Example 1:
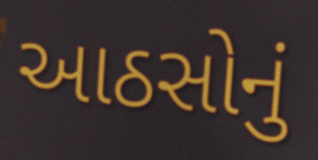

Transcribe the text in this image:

આઠસોનું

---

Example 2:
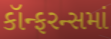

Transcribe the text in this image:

કૉન્ફરન્સમાં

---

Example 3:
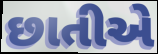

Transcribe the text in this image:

છાતીએ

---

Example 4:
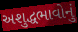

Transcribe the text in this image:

અશુદ્ધભાવોનું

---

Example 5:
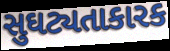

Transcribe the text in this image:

સુઘટ્યતાકારક